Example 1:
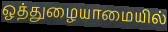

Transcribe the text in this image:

ஒத்துழையாமையில்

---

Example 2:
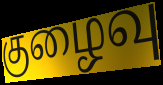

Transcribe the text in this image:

குழைவு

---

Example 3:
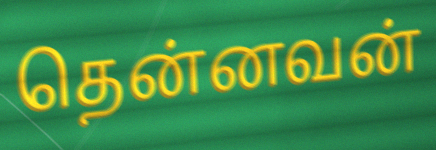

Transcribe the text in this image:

தென்னவன்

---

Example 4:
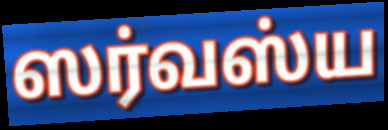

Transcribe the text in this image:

ஸர்வஸ்ய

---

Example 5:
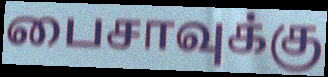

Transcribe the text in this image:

பைசாவுக்கு